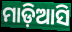
ମାଡ଼ିଆସି